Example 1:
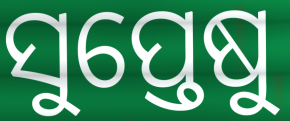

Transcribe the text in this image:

ସୁପ୍ତେଷୁ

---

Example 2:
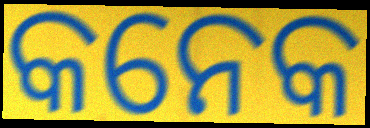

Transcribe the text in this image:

କନେକ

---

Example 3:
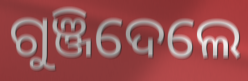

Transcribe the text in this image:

ଗୁଞ୍ଜିଦେଲେ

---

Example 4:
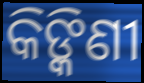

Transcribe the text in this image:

କିଙ୍କିଣୀ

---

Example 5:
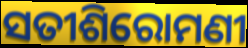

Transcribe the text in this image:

ସତୀଶିରୋମଣୀ